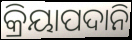
କ୍ରିୟାପଦାନି